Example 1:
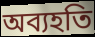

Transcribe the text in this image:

অব্যহতি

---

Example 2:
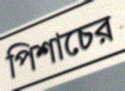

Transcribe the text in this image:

পিশাচের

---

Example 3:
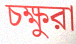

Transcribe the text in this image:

চক্ষুরা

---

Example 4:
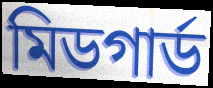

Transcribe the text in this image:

মিডগার্ড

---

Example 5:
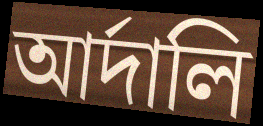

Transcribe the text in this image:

আর্দালি